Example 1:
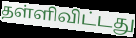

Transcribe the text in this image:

தள்ளிவிட்டது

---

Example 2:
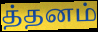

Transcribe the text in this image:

த்தனம்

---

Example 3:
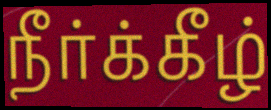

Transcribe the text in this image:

நீர்க்கீழ்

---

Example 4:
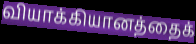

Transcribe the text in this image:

வியாக்கியானத்தைக்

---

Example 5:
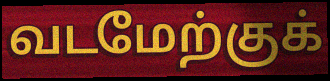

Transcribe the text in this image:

வடமேற்குக்